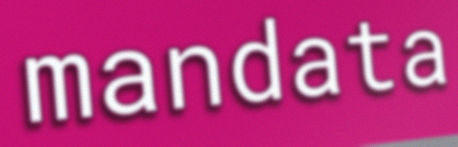
mandata